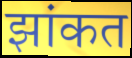
झांकत